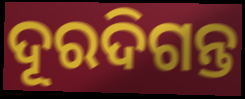
ଦୂରଦିଗନ୍ତ